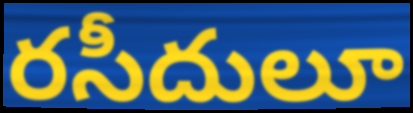
రసీదులూ